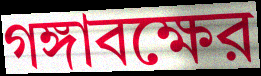
গঙ্গাবক্ষের